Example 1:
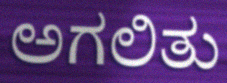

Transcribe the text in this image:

ಅಗಲಿತು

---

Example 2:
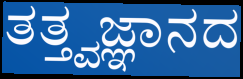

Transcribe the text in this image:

ತತ್ತ್ವಜ್ಞಾನದ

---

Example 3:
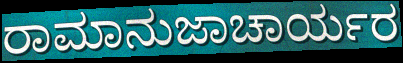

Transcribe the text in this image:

ರಾಮಾನುಜಾಚಾರ್ಯರ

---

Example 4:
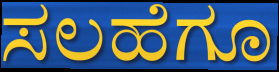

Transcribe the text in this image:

ಸಲಹೆಗೂ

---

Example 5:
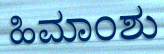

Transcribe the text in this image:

ಹಿಮಾಂಶು